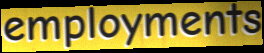
employments